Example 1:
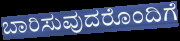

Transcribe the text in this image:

ಬಾರಿಸುವುದರೊಂದಿಗೆ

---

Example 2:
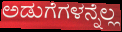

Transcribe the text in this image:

ಅಡುಗೆಗಳನ್ನೆಲ್ಲ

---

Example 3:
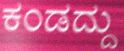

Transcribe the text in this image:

ಕಂಡದ್ದು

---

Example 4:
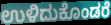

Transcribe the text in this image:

ಉಳಿದುಕೊಂಡರೆ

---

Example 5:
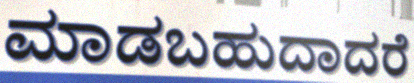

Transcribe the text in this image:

ಮಾಡಬಹುದಾದರೆ